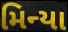
મિન્યા